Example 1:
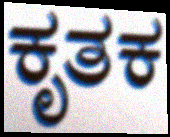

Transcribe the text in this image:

ಕೃತಕ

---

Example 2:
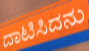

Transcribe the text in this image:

ದಾಟಿಸಿದನು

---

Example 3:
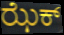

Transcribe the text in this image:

ಝೆಕ್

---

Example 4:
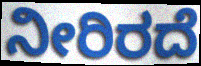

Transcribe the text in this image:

ನೀರಿರದೆ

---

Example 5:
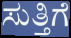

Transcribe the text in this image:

ಸುತ್ತಿಗೆ